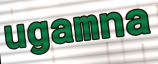
ugamna